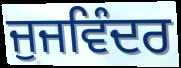
ਜੁਜਵਿੰਦਰ